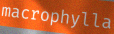
macrophylla